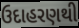
ઉદાહરણથી